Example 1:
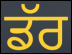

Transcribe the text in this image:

ਡੱਰ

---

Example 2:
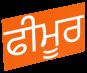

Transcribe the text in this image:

ਫੀਮੂਰ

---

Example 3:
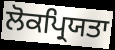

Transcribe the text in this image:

ਲੋਕਪ੍ਰਿਯਤਾ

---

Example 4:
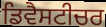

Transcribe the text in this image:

ਡਿਵੈਸਟੀਚਰ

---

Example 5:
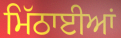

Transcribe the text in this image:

ਮਿੱਠਾਈਆਂ